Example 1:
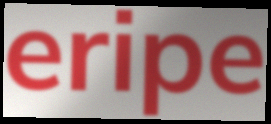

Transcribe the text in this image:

eripe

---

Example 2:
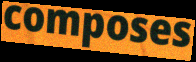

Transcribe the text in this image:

composes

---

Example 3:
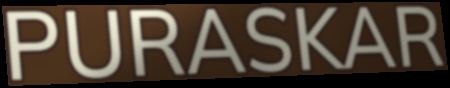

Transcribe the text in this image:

PURASKAR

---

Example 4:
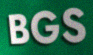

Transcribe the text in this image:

BGS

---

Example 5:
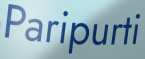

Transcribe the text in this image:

Paripurti